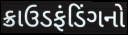
ક્રાઉડફંડિંગનો